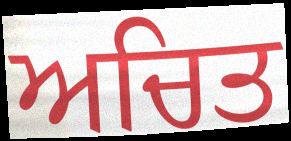
ਅਚਿਤ